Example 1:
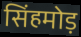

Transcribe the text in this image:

सिंहमोड़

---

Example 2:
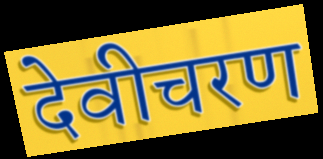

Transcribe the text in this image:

देवीचरण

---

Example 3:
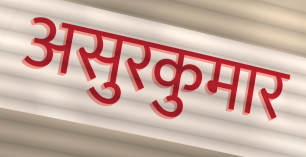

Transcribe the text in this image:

असुरकुमार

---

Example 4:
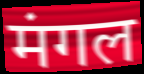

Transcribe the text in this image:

मंगल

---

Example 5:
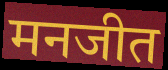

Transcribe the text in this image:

मनजीत